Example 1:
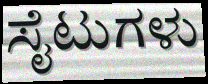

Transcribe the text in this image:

ಸೈಟುಗಳು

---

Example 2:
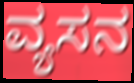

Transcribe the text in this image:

ವ್ಯಸನ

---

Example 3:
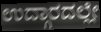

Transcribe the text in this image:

ಉದ್ಗಾರದಲ್ಲೇ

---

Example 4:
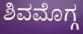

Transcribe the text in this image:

ಶಿವಮೊಗ್ಗ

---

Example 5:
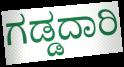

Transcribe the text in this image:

ಗಡ್ಡದಾರಿ